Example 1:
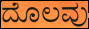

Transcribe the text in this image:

ದೊಲವು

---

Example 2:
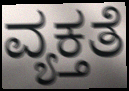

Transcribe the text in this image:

ವ್ಯಕ್ತತೆ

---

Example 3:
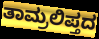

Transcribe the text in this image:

ತಾಮ್ರಲಿಪ್ತದ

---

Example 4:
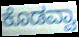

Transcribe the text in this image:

ಕೊಡವ್ವಾ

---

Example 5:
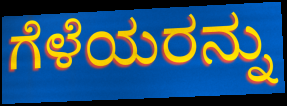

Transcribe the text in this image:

ಗೆಳೆಯರನ್ನು